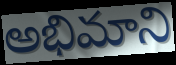
అభిమాని